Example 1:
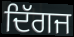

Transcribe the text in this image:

ਦਿੱਗਜ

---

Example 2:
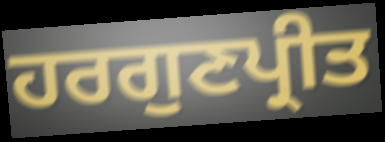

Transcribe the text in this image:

ਹਰਗੁਣਪ੍ਰੀਤ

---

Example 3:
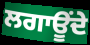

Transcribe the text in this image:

ਲਗਾਊਂਦੇ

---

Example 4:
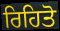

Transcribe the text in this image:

ਰਿਹਿਤੋ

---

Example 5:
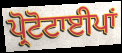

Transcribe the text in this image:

ਪ੍ਰੋਟੋਟਾਈਪਾਂ